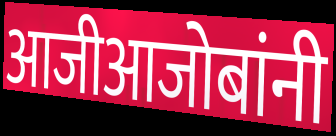
आजीआजोबांनी